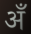
अँ